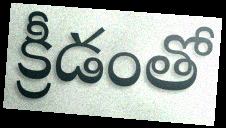
క్రీడంతో